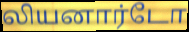
லியனார்டோ